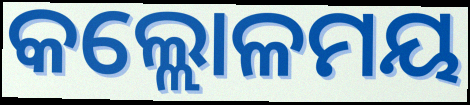
କଲ୍ଲୋଳମୟ